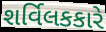
શર્વિલકકારે